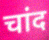
चांद